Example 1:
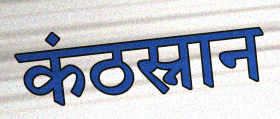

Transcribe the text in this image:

कंठस्नान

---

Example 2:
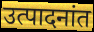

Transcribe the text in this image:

उत्पादनांत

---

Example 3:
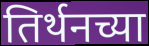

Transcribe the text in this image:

तिर्थनच्या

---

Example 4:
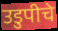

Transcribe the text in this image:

उडुपीचे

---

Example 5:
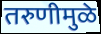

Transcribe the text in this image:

तरुणीमुळे